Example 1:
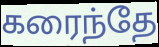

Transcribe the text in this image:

கரைந்தே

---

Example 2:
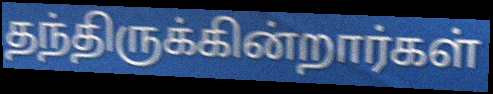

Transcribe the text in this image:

தந்திருக்கின்றார்கள்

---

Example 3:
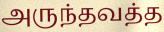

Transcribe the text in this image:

அருந்தவத்த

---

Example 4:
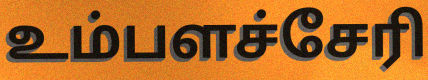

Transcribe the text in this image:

உம்பளச்சேரி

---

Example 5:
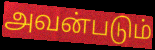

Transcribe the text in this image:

அவன்படும்